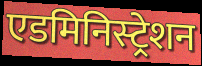
एडमिनिस्‍ट्रेशन